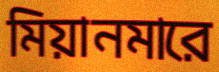
মিয়ানমারে